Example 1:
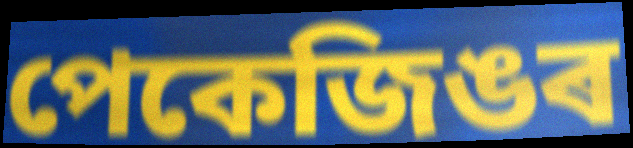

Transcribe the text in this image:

পেকেজিঙৰ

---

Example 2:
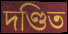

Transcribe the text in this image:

দণ্ডিত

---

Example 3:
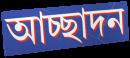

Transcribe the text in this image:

আচ্ছাদন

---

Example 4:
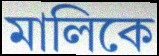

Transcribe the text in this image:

মালিকে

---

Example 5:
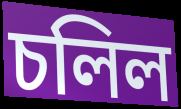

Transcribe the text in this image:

চলিল